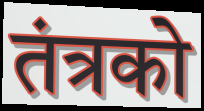
तंत्रको